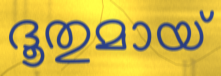
ദൂതുമായ്